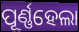
ପୂର୍ଣ୍ଣହେଲା